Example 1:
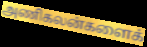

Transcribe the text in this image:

அணிகலன்களைக்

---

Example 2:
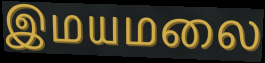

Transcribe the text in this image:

இமயமலை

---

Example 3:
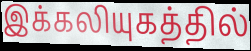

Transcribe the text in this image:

இக்கலியுகத்தில்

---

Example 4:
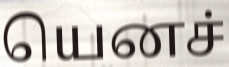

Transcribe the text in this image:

யெனச்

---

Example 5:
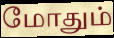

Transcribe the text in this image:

மோதும்